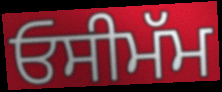
ਓਸੀਮੱਮ